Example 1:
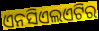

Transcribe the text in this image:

ଏନସିଏଲଏଟିର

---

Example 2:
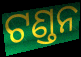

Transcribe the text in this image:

ଟଣ୍ଡନ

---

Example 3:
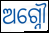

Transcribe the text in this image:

ଅଗ୍ନୌ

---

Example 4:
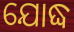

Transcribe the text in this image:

ଯୋଦ୍ଧ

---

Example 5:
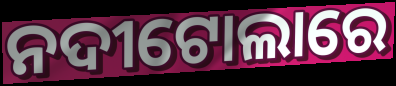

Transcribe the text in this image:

ନଦୀଟୋଲାରେ